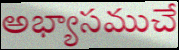
అభ్యాసముచే